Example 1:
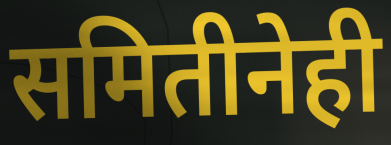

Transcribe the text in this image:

समितीनेही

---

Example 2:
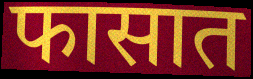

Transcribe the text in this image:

फासात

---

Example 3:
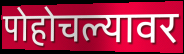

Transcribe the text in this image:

पोहोचल्यावर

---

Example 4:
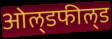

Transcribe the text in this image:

ओल्डफील्ड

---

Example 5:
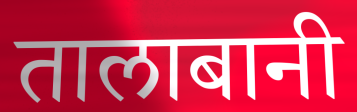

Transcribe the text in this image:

तालाबानी